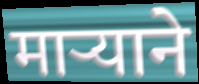
मार्‍याने